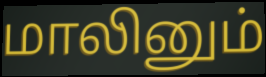
மாலினும்